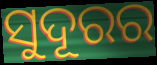
ସୁଦୂରର